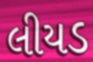
લીયડ